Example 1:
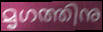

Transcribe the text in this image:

മൃഗത്തിനു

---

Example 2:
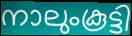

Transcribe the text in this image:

നാലുംകൂട്ടി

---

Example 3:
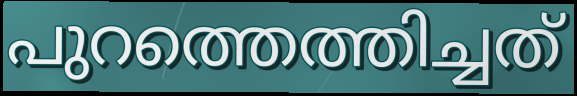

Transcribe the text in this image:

പുറത്തെത്തിച്ചത്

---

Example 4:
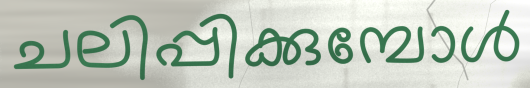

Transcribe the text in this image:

ചലിപ്പിക്കുമ്പോൾ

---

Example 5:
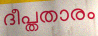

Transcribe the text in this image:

ദീപ്തതാരം